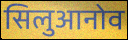
सिलुआनोव